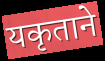
यकृताने